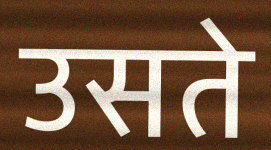
उसते